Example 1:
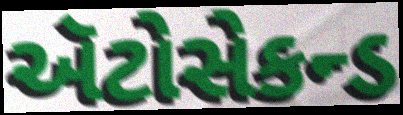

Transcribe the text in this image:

ઍટોસેકન્ડ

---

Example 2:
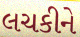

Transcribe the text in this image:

લચકીને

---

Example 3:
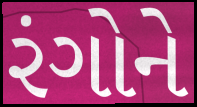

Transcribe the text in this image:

રંગોને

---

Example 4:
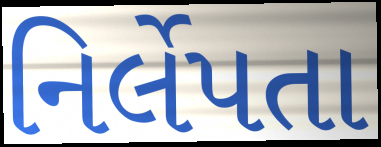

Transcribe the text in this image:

નિર્લેપતા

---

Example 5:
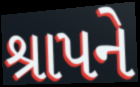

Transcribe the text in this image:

શ્રાપને